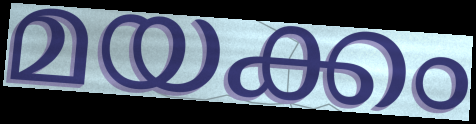
മയക്കം